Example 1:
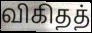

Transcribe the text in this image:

விகிதத்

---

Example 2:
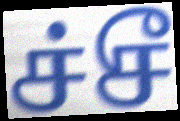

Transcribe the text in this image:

ச்சீ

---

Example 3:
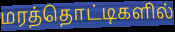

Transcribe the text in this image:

மரத்தொட்டிகளில்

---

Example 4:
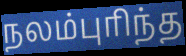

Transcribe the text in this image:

நலம்புரிந்த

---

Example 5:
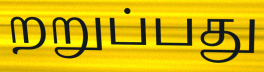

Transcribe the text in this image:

றறுப்பது